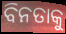
ବିନତାକୁ